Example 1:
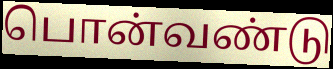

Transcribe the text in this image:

பொன்வண்டு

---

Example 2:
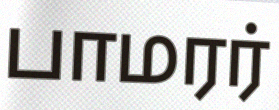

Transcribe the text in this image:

பாமரர்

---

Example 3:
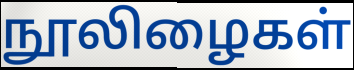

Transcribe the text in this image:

நூலிழைகள்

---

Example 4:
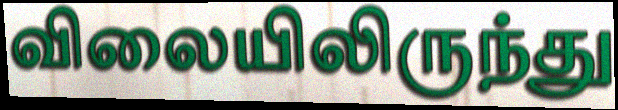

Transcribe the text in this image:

விலையிலிருந்து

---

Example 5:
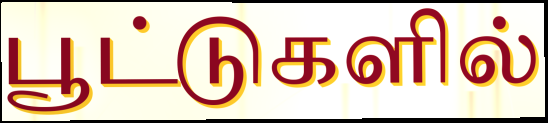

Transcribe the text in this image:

பூட்டுகளில்